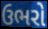
ઉભરો